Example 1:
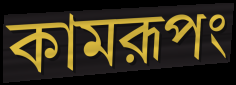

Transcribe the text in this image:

কামরূপং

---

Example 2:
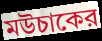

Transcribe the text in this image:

মউচাকের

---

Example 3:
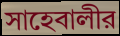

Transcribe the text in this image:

সাহেবালীর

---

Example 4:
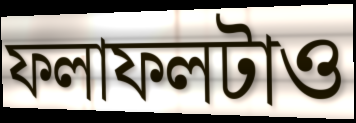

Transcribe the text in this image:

ফলাফলটাও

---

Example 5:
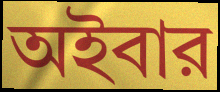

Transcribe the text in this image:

অইবার